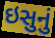
ઇસુનું